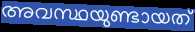
അവസ്ഥയുണ്ടായത്